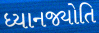
ધ્યાનજ્યોતિ